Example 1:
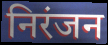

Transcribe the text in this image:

निरंजन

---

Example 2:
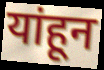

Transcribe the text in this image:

यांहून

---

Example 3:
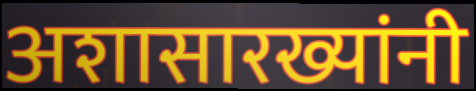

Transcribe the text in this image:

अशासारख्यांनी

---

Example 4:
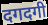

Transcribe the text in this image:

दगदगी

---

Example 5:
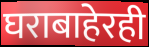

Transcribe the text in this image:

घराबाहेरही